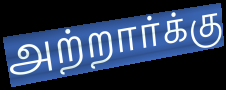
அற்றார்க்கு